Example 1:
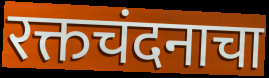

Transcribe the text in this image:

रक्तचंदनाचा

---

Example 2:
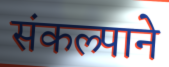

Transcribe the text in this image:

संकल्पाने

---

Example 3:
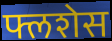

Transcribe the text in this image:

फ्लशेस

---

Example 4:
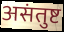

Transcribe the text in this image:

असंतुष्ट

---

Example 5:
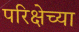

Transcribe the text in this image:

परिक्षेच्या